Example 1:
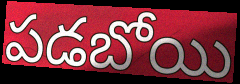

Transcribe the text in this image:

పడబోయి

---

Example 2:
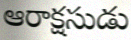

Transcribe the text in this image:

ఆరాక్షసుడు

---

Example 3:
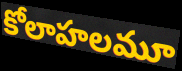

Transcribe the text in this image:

కోలాహలమూ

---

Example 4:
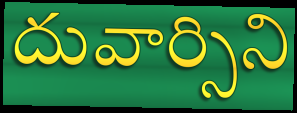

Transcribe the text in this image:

దువార్సిని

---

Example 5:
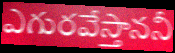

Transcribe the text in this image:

ఎగురవేస్తాననీ